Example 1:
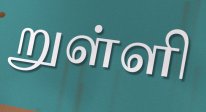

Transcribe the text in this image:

றுள்ளி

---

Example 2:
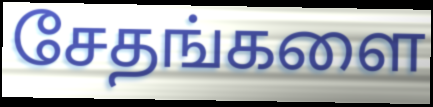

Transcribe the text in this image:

சேதங்களை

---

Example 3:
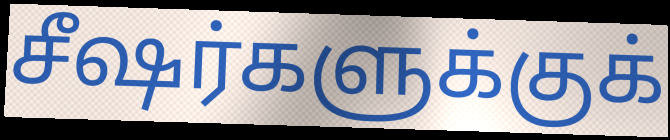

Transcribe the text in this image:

சீஷர்களுக்குக்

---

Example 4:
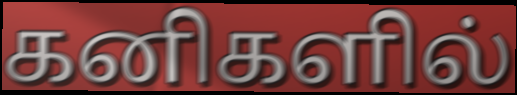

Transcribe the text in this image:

கனிகளில்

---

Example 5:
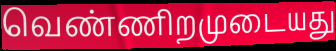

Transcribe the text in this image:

வெண்ணிறமுடையது